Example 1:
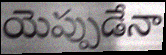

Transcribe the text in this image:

యెప్పుడేనా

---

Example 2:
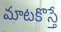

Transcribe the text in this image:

మాటకొస్తే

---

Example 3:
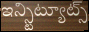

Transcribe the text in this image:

ఇన్స్టిట్యూట్స్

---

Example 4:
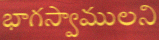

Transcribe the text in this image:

భాగస్వాములని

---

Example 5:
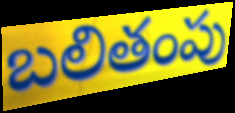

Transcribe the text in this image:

బలితంపు